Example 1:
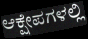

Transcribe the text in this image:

ಆಕ್ಷೇಪಗಳಲ್ಲಿ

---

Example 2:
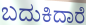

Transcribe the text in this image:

ಬದುಕಿದಾರೆ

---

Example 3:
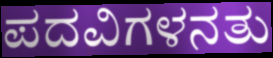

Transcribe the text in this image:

ಪದವಿಗಳನತು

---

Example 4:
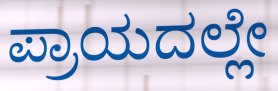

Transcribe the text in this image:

ಪ್ರಾಯದಲ್ಲೇ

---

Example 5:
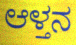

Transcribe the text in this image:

ಆಳ್ತನ